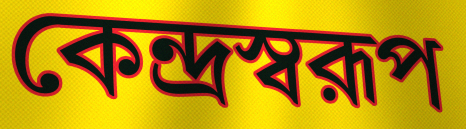
কেন্দ্রস্বরূপ